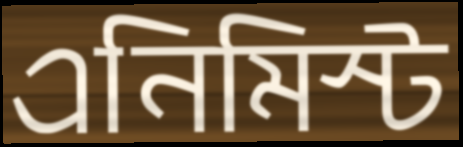
এনিমিস্ট